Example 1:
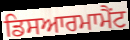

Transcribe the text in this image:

ਡਿਸਆਰਮਾਮੈਂਟ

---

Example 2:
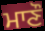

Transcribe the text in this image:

ਮਾਣੌ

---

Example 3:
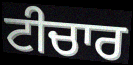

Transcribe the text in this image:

ਟੀਚਾਰ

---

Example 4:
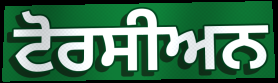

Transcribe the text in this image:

ਟੋਰਸੀਅਨ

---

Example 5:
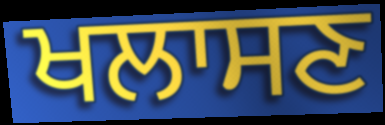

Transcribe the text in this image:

ਖਲਾਸਣ